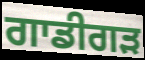
ਗਾਡੀਗੜ